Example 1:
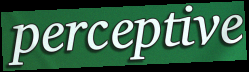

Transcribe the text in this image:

perceptive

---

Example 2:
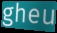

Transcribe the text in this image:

gheu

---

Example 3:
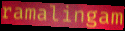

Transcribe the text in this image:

ramalingam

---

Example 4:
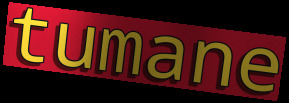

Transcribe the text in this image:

tumane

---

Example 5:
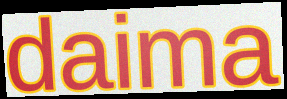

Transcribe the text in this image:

daima